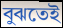
বুঝতেই